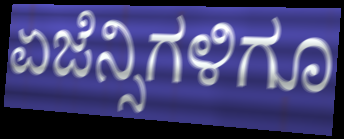
ಏಜೆನ್ಸಿಗಳಿಗೂ